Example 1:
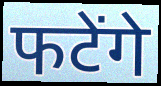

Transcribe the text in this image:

फटेंगे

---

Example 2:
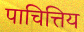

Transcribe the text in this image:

पाचित्तिय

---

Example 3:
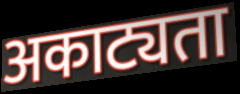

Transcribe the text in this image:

अकाट्यता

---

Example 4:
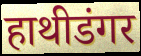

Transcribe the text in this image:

हाथीडंगर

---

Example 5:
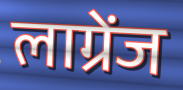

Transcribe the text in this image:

लाग्रेंज